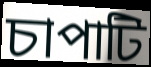
চাপাটি